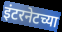
इंटरनेटच्या